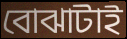
বোঝাটাই